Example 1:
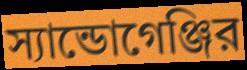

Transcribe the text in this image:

স্যান্ডোগেঞ্জির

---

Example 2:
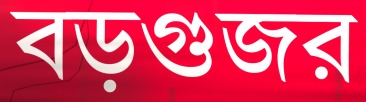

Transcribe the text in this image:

বড়গুজর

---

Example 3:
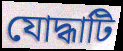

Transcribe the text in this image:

যোদ্ধাটি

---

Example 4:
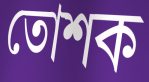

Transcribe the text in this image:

তোশক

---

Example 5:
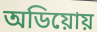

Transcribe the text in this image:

অডিয়োয়